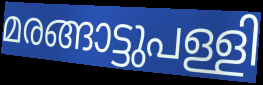
മരങ്ങാട്ടുപള്ളി